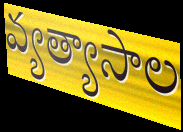
వ్యత్యాసాల